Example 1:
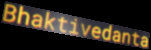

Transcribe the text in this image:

Bhaktivedanta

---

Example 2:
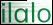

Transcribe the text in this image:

ilalo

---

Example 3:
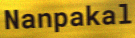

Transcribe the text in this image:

Nanpakal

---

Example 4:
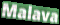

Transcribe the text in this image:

Malava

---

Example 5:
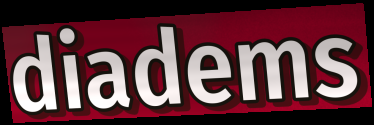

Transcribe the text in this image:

diadems